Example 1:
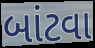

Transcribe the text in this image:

બાંટવા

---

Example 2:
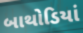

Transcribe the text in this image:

બાથોડિયાં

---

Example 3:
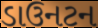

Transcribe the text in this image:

ડાઉનટન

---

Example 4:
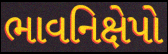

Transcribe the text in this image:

ભાવનિક્ષેપો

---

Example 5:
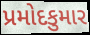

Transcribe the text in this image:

પ્રમોદકુમાર